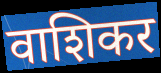
वाशिकर